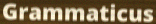
Grammaticus